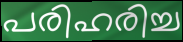
പരിഹരിച്ച